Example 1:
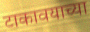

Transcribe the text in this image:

टाकावयाच्या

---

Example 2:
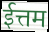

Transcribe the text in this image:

ईत्तम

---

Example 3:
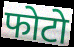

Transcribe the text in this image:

फोटो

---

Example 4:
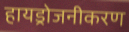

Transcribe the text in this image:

हायड्रोजनीकरण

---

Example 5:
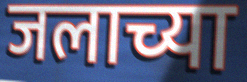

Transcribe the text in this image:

जलाच्या